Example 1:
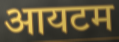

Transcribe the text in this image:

आयटम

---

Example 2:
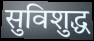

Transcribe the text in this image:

सुविशुद्ध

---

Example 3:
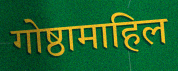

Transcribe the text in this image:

गोष्ठामाहिल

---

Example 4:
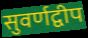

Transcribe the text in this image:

सुवर्णद्वीप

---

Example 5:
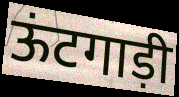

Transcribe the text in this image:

ऊंटगाड़ी